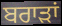
ਬਰਾੜਾਂ